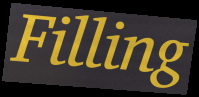
Filling